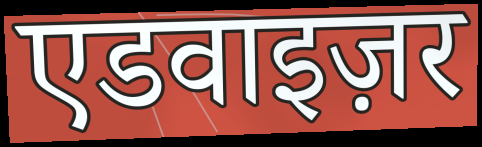
एडवाइज़र